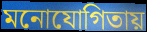
মনোযোগিতায়